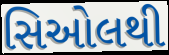
સિઓલથી